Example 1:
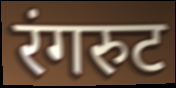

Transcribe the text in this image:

रंगरुट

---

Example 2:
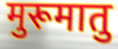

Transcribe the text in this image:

मुरूमातु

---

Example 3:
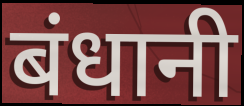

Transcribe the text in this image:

बंधानी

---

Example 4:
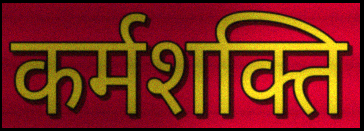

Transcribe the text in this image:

कर्मशक्ति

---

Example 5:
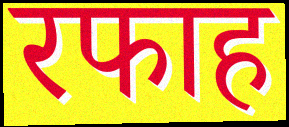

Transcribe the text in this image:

रफाह